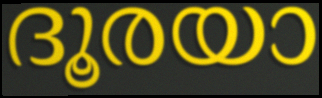
ദൂരയാ